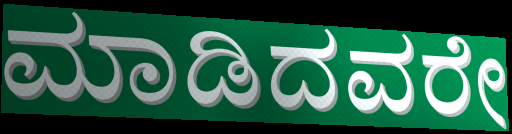
ಮಾಡಿದವರೇ